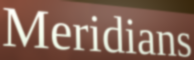
Meridians